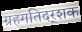
ग्रहगतिदर्शक